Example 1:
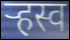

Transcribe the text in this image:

र्‍हस्व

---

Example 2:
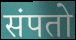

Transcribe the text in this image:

संपतो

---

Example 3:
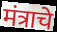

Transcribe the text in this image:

मंत्राचे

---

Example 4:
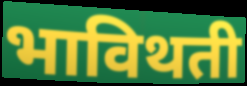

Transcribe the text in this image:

भाविथती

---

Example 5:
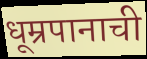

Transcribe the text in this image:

धूम्रपानाची